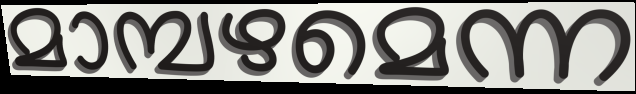
മാമ്പഴമെന്ന